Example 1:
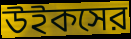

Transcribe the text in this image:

উইকসের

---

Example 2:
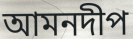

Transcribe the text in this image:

আমনদীপ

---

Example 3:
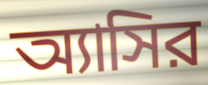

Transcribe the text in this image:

অ্যাসির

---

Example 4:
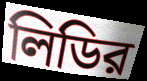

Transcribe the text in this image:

লিডির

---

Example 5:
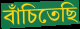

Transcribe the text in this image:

বাঁচিতেছি